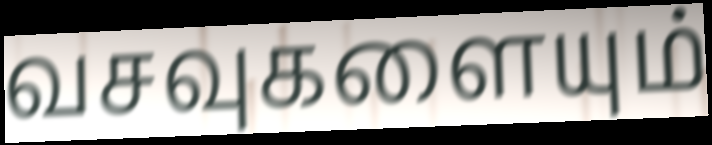
வசவுகளையும்